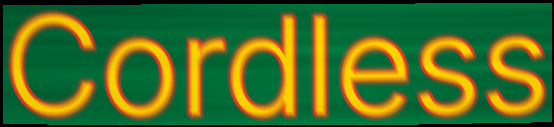
Cordless